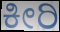
ಕೀರಿ